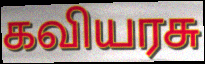
கவியரசு